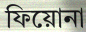
ফিয়োনা